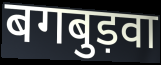
बगबुड़वा